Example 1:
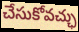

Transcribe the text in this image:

చేసుకోవచ్ఛు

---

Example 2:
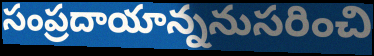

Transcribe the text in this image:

సంప్రదాయాన్ననుసరించి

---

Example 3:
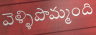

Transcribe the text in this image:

వెళ్ళిపొమ్మంది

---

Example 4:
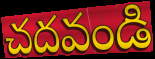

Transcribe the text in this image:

చదవండి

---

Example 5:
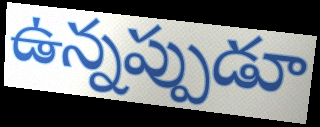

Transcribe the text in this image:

ఉన్నప్పుడూ